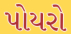
પોયરો